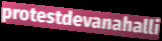
protestdevanahalli